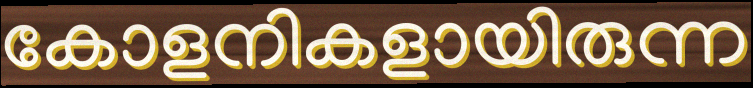
കോളനികളായിരുന്ന